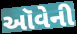
ઑવેની